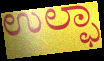
ಉಲ್ಫಾ